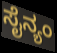
ಸೈನ್ಯಂ